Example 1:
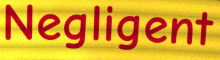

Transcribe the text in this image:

Negligent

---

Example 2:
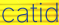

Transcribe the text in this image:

catid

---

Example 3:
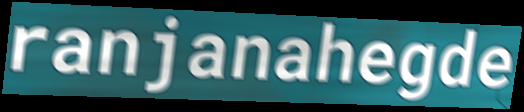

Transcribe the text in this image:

ranjanahegde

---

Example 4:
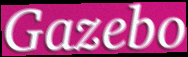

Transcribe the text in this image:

Gazebo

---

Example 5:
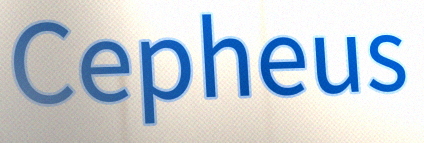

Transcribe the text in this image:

Cepheus